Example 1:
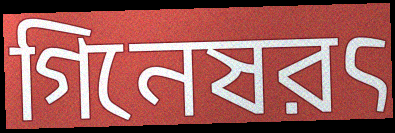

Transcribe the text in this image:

গিনেষরৎ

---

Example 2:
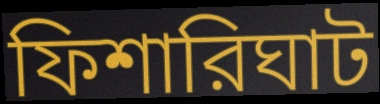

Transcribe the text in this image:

ফিশারিঘাট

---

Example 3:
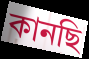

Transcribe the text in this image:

কানছি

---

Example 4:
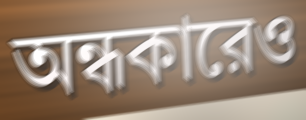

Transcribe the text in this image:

অন্ধকারেও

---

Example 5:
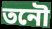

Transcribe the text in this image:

তনৌ